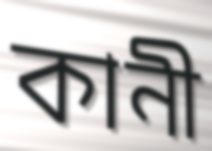
কানী